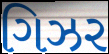
ગિઝર